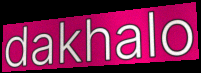
dakhalo